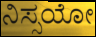
ನಿಸ್ಸಯೋ